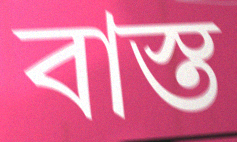
বাস্ত